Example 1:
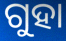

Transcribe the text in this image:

ଗୁହା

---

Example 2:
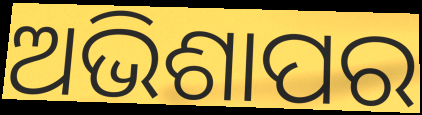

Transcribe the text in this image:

ଅଭିଶାପର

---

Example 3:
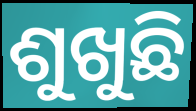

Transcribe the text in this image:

ଶୁଖୁଛି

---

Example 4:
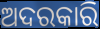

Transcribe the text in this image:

ଅଦରକାରି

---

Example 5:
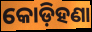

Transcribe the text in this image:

କୋଡ଼ିହଣା